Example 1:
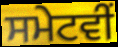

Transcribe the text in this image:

ਸਮੇਟਵੀਂ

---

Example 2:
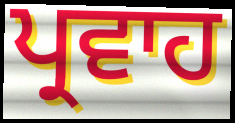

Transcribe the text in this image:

ਪ੍ਰਵਾਹ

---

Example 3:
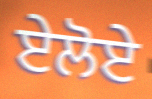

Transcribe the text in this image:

ਏਲੋਏ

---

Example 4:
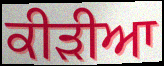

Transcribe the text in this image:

ਕੀੜੀਆ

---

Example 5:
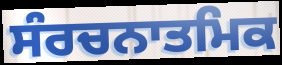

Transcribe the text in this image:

ਸੰਰਚਨਾਤਮਿਕ